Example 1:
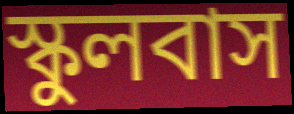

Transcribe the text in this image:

স্কুলবাস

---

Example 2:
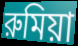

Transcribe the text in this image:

রুমিয়া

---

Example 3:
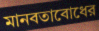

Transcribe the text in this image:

মানবতাবোধের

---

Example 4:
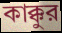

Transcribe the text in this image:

কাক্কুর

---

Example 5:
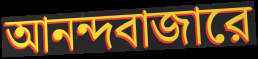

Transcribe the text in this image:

আনন্দবাজারে